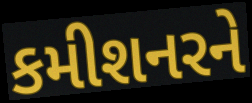
કમીશનરને